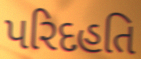
પરિદહતિ